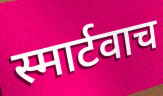
स्मार्टवाच